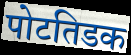
पोटतिडक